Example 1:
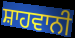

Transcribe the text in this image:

ਸ਼ਾਹਵਾਨੀ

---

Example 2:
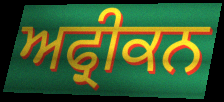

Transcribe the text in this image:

ਅਫ੍ਰੀਕਨ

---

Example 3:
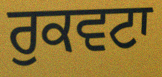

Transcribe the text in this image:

ਰੁਕਵਟਾ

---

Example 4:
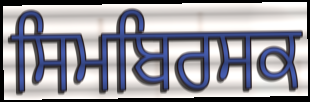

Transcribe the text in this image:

ਸਿਮਬਿਰਸਕ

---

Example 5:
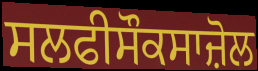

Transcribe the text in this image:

ਸਲਫੀਸੌਕਸਾਜ਼ੋਲ